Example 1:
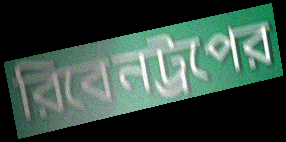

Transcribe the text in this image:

রিবেনট্রপের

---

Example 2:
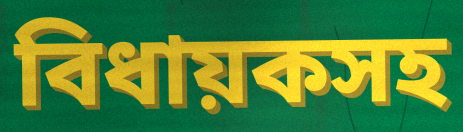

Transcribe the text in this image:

বিধায়কসহ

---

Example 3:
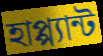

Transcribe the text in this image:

হাপ্প্যান্ট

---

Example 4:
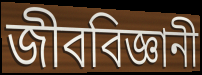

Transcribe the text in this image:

জীববিজ্ঞানী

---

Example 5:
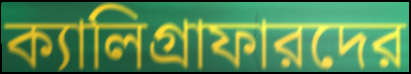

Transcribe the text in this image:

ক্যালিগ্রাফারদের